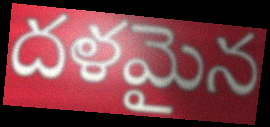
దళమైన